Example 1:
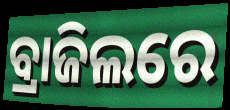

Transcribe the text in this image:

ବ୍ରାଜିଲରେ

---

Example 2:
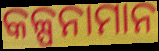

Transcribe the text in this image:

କଳ୍ପନାମାନ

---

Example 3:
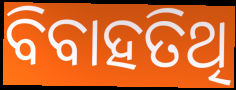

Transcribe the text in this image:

ବିବାହତିଥି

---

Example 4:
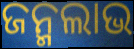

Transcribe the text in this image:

ଜନ୍ମଲାଭ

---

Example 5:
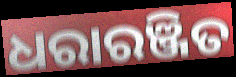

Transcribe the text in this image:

ଧରାରଞ୍ଜିତ